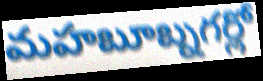
మహబూబ్నగర్లో